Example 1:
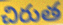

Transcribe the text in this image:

చిరుత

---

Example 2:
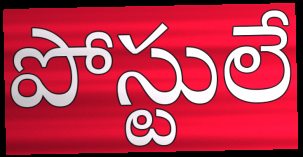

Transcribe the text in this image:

పోస్టులే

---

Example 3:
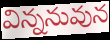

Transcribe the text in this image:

విన్ననువున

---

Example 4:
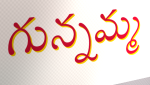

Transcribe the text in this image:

గున్నమ్మ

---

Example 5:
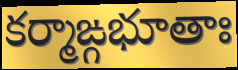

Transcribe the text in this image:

కర్మాఙ్గభూతాః